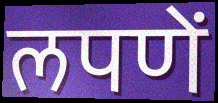
लपणें